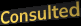
Consulted